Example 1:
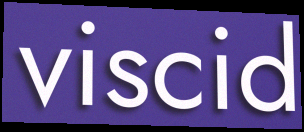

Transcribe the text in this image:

viscid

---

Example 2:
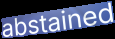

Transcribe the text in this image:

abstained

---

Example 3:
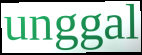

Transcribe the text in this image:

unggal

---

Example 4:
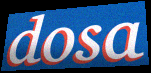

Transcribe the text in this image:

dosa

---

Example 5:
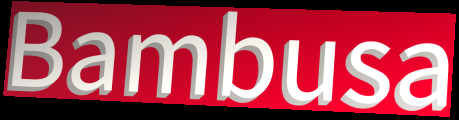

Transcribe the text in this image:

Bambusa